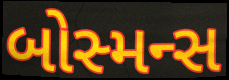
બોસ્મન્સ